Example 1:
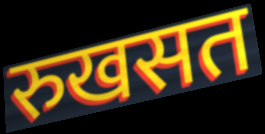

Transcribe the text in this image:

रुखसत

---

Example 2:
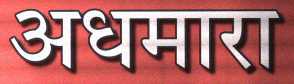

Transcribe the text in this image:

अधमारा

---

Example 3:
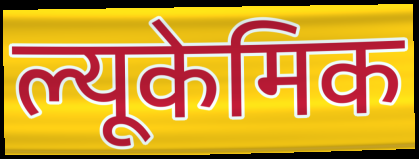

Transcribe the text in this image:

ल्यूकेमिक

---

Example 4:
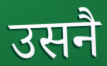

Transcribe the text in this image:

उसनै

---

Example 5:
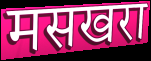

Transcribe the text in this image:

मसखरा